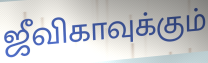
ஜீவிகாவுக்கும்